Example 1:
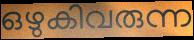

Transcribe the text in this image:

ഒഴുകിവരുന്ന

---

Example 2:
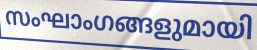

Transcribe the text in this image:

സംഘാംഗങ്ങളുമായി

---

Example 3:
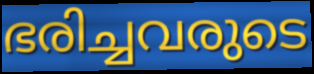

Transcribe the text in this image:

ഭരിച്ചവരുടെ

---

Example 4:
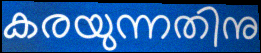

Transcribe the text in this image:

കരയുന്നതിനു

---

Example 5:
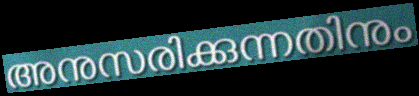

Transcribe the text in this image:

അനുസരിക്കുന്നതിനും